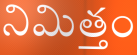
నిమిత్తం